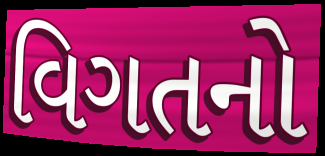
વિગતનો